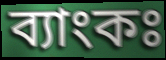
ব্যাংকঃ